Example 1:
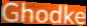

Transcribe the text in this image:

Ghodke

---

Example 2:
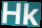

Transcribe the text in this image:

Hk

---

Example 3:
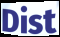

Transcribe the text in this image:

Dist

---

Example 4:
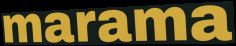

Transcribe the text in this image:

marama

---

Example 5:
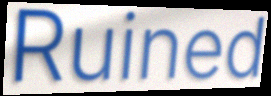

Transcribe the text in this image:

Ruined